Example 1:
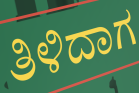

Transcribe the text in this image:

ತಿಳಿದಾಗ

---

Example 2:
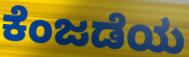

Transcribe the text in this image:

ಕೆಂಜಡೆಯ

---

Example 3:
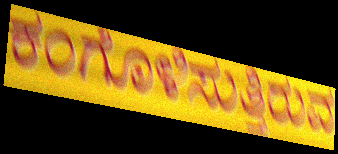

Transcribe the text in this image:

ಕಂಗೊಳಿಸುತ್ತಿರುವ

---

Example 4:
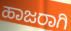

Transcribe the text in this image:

ಹಾಜರಾಗಿ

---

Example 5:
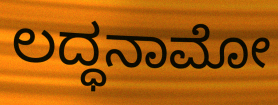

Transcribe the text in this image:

ಲದ್ಧನಾಮೋ